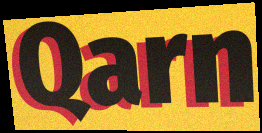
Qarn